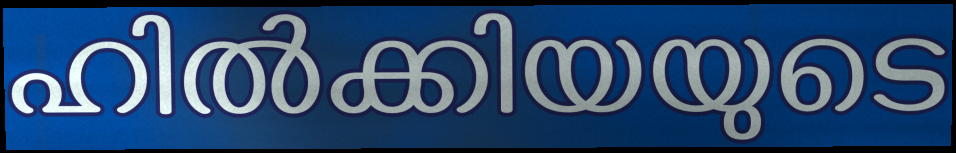
ഹിൽക്കിയയുടെ